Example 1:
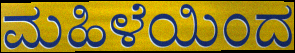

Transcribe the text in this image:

ಮಹಿಳೆಯಿಂದ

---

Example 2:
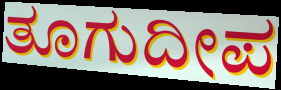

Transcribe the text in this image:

ತೂಗುದೀಪ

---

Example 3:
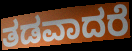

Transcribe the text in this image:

ತಡವಾದರೆ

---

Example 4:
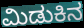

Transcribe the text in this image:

ಮಿಡುಕಿನ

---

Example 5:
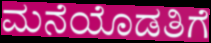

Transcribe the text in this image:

ಮನೆಯೊಡತಿಗೆ